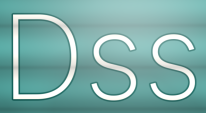
Dss